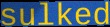
sulked